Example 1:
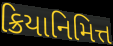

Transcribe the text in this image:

ક્રિયાનિમિત્ત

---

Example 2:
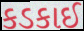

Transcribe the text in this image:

કડકાઈ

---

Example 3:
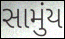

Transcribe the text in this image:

સામુંય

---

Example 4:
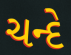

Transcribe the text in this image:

ચન્દે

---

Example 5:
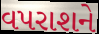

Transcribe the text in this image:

વપરાશને